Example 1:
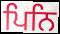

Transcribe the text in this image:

ਪਿਨਿ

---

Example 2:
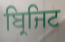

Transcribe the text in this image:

ਬ੍ਰਿਜਿਟ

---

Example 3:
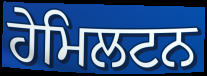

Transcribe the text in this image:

ਹੇਮਿਲਟਨ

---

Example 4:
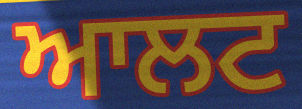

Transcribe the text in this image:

ਆਲਟ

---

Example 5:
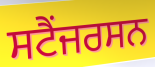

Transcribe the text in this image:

ਸਟੈਂਜਰਸਨ